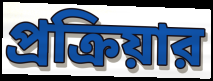
প্রক্রিয়ার